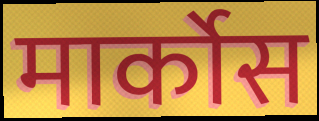
मार्कोस